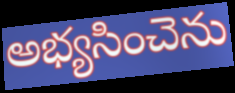
అభ్యసించెను